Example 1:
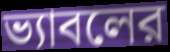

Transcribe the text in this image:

ভ্যাবলের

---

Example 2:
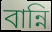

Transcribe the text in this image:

বান্নি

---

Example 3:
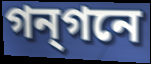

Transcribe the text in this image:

গন্গনে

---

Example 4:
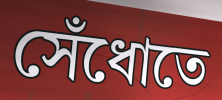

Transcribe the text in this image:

সেঁধোতে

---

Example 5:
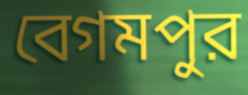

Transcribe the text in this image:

বেগমপুর